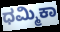
ಧಮ್ಮಿಕಾ